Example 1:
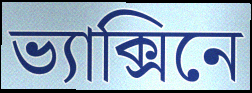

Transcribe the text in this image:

ভ্যাক্সিনে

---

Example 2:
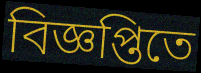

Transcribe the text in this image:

বিজ্ঞপ্তিতে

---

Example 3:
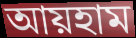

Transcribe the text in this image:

আয়হাম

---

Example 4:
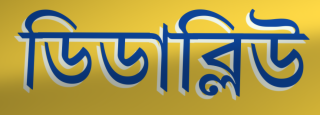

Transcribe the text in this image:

ডিডাব্লিউ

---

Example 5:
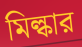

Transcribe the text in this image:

মিল্কার